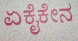
ಏಕೈಕೇನ